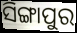
ସିଙ୍ଗାପୁର